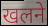
खलने